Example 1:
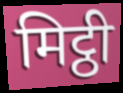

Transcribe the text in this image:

मिट्ठी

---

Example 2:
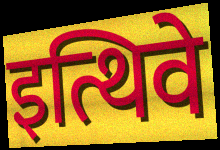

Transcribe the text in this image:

इत्थिवे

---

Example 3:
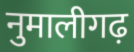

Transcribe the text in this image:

नुमालीगढ़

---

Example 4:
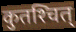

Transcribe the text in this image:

कुतश्चित्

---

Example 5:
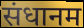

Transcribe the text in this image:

संधानम